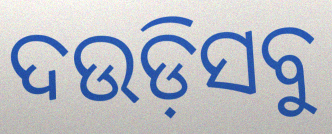
ଦଉଡ଼ିସବୁ